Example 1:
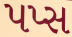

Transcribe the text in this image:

પપ્સ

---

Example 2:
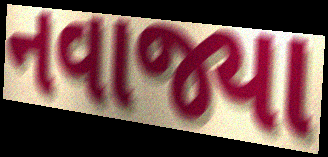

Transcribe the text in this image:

નવાજ્યા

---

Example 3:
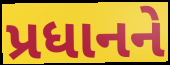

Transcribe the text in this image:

પ્રધાનને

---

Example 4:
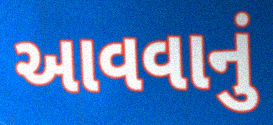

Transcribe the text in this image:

આવવાનું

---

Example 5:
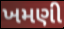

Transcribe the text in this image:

ખમણી